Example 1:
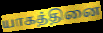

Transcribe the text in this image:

யாகத்தினை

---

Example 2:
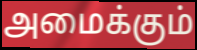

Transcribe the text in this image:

அமைக்கும்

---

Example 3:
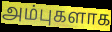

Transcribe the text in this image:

அம்புகளாக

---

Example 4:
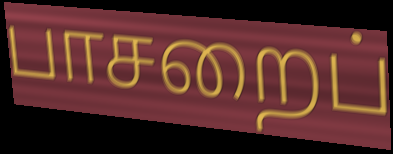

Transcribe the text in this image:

பாசறைப்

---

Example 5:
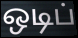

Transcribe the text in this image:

ஒடிப்